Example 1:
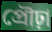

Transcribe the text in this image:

প্রৌঢ়া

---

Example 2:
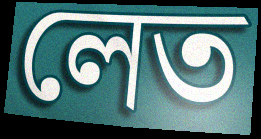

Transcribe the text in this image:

লেত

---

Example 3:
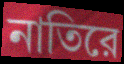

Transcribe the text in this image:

নাতিরে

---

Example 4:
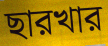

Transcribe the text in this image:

ছারখার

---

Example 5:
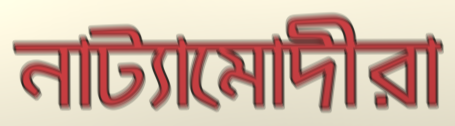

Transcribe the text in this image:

নাট্যামোদীরা